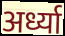
अर्ध्या